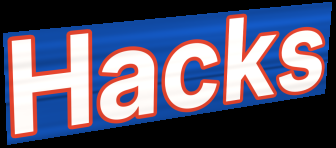
Hacks